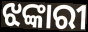
ଝଙ୍କାରୀ